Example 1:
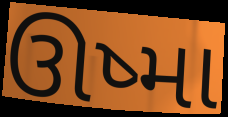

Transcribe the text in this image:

ઊષ્મા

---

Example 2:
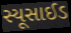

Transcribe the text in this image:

સ્યૂસાઈડ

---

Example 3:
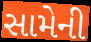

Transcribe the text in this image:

સામેની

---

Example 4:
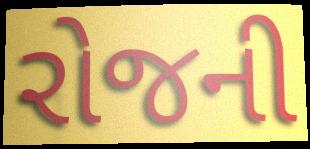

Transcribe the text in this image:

રોજની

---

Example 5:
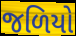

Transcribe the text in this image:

જળિયો